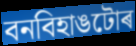
বনবিহাঙটোৰ